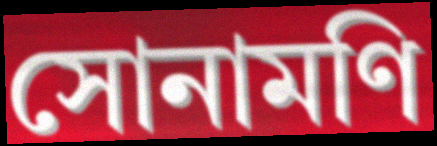
সোনামণি